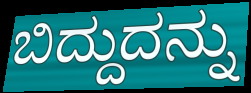
ಬಿದ್ದುದನ್ನು